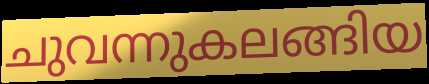
ചുവന്നുകലങ്ങിയ